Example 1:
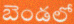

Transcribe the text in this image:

బెండలో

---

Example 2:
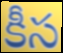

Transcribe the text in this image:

కీస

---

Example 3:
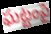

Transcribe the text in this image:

ఘట్టంపై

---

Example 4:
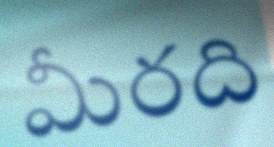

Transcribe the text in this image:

మీరది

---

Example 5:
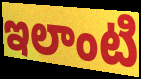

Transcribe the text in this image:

ఇలాంటి